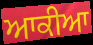
ਆਕੀਆ